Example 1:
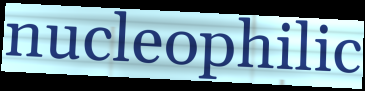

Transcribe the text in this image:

nucleophilic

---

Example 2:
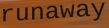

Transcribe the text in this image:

runaway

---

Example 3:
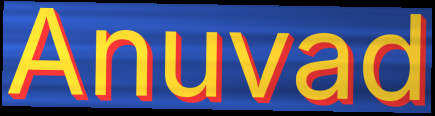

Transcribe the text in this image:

Anuvad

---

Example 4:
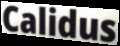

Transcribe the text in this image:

Calidus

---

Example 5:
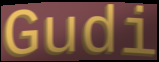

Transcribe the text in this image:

Gudi